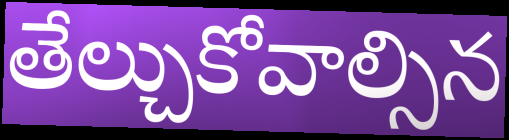
తేల్చుకోవాల్సిన